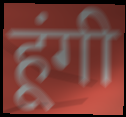
हूंगी